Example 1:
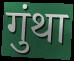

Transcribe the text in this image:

गुंथा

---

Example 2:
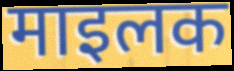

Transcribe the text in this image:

माइलक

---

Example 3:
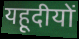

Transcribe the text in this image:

यहूदीयों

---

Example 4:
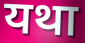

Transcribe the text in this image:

यथा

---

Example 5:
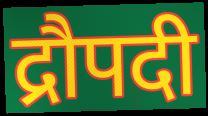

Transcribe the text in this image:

द्रौपदी